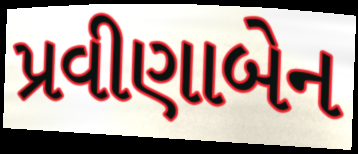
પ્રવીણાબેન